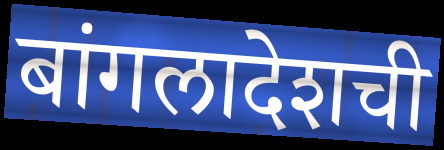
बांगलादेशची